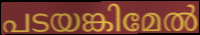
പടയങ്കിമേൽ